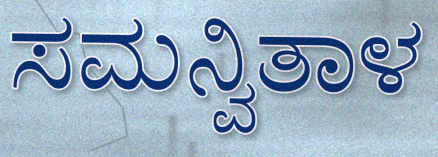
ಸಮನ್ವಿತಾಳ